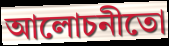
আলোচনীতো